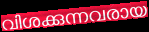
വിശക്കുന്നവരായ